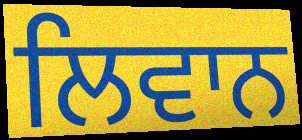
ਲਿਵਾਨ